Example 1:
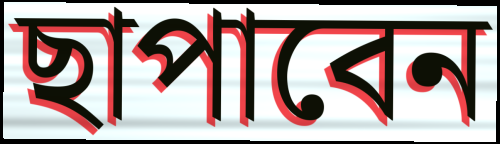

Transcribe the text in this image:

ছাপাবেন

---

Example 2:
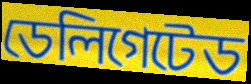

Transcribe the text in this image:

ডেলিগেটেড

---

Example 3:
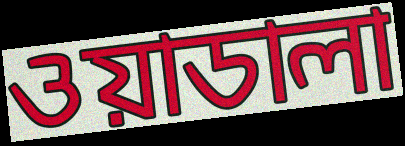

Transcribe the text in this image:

ওয়াডালা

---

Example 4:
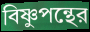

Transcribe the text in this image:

বিষ্ণুপন্থের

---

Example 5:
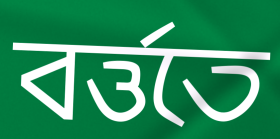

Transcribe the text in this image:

বর্ত্ততে